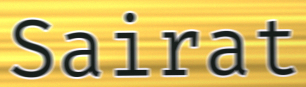
Sairat